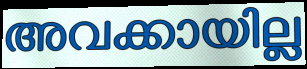
അവക്കായില്ല